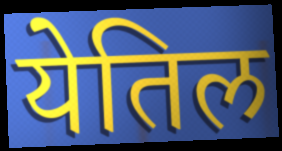
येतिल